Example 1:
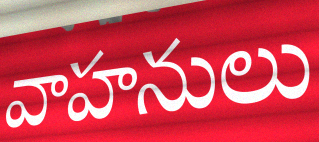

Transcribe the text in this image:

వాహనులు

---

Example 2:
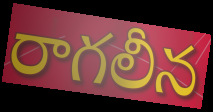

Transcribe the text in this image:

రాగలీన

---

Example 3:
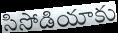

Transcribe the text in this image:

సిసోడియాకు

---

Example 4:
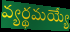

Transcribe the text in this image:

వ్యర్థమయ్యే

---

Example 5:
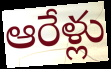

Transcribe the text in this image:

ఆరేళ్లు